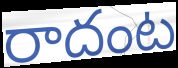
రాదంట